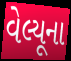
વેલ્યૂના